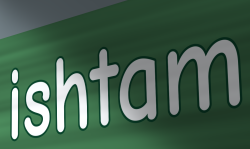
ishtam